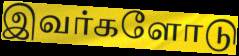
இவர்களோடு